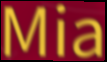
Mia